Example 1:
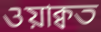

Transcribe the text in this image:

ওয়াক্বত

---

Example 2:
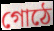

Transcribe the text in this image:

গোঠে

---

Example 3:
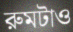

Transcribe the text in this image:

রুমটাও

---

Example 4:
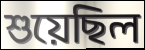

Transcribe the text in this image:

শুয়েছিল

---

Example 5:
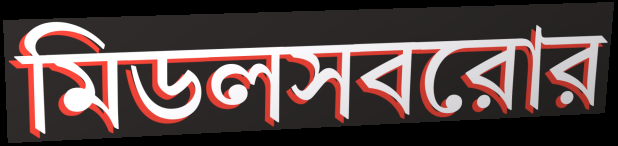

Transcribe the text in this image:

মিডলসবরোর